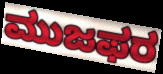
ಮುಜಫರ